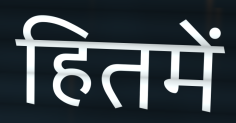
हितमें